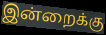
இன்றைக்கு